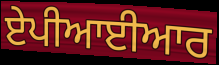
ਏਪੀਆਈਆਰ